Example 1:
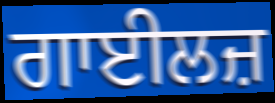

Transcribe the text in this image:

ਗਾਈਲਜ਼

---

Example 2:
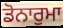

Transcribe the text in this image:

ਡੋਨਾਰੁਮਾ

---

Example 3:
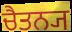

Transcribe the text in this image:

ਚੈਤਨ੍ਯ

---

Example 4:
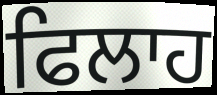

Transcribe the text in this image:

ਫਿਲਾਹ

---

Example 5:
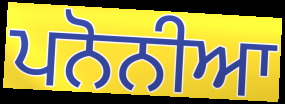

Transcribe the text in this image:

ਪਨੋਨੀਆ